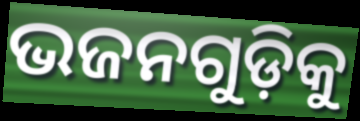
ଭଜନଗୁଡ଼ିକୁ